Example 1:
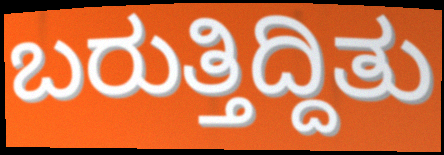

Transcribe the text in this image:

ಬರುತ್ತಿದ್ದಿತು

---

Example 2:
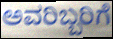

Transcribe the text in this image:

ಅವರಿಬ್ಬರಿಗೆ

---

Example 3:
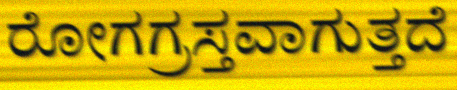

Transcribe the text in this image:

ರೋಗಗ್ರಸ್ತವಾಗುತ್ತದೆ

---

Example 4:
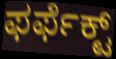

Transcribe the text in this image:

ಫರ್ಫೆಕ್ಟ್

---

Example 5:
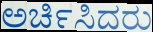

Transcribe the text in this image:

ಅರ್ಚಿಸಿದರು